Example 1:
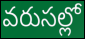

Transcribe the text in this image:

వరుసల్లో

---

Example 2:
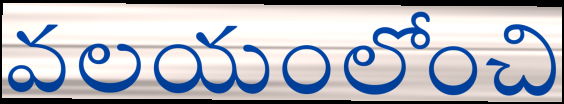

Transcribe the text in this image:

వలయంలోంచి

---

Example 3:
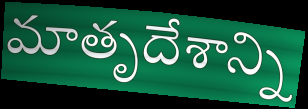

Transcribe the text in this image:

మాతృదేశాన్ని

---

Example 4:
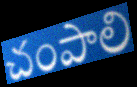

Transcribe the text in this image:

చంపాలి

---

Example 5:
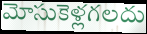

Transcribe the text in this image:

మోసుకెళ్లగలదు